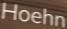
Hoehn